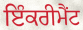
ਇੰਕਰੀਮੈਂਟ